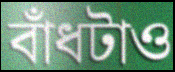
বাঁধটাও